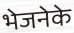
भेजनेके